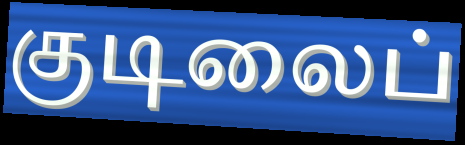
குடிலைப்